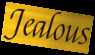
Jealous